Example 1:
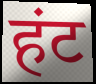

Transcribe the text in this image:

हंट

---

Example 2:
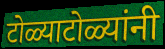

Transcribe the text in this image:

टोळ्याटोळ्यांनी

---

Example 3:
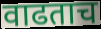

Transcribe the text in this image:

वाढताच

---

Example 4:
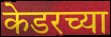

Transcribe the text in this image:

केडरच्या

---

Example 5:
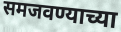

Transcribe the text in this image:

समजवण्याच्या